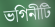
ভগিনীটি